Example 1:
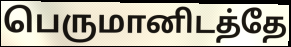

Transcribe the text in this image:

பெருமானிடத்தே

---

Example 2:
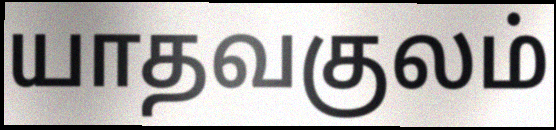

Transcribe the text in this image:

யாதவகுலம்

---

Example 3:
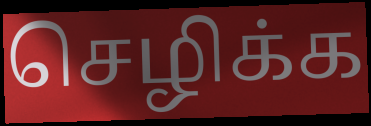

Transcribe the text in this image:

செழிக்க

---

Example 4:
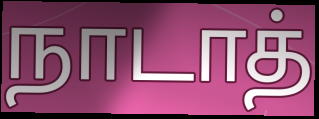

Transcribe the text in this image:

நாடாத்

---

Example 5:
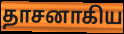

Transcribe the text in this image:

தாசனாகிய